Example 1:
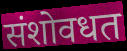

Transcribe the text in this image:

संशोवधत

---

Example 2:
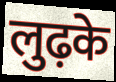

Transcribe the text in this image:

लुढ़के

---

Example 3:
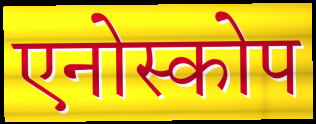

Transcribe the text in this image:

एनोस्कोप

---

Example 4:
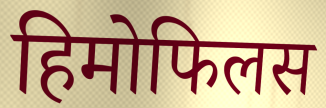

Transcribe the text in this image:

हिमोफिलस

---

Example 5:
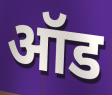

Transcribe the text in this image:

ऑड